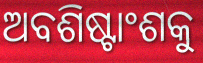
ଅବଶିଷ୍ଟାଂଶକୁ